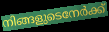
നിങ്ങളുടെനേർക്ക്